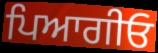
ਪਿਆਗੀਓ